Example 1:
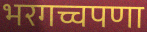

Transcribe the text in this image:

भरगच्चपणा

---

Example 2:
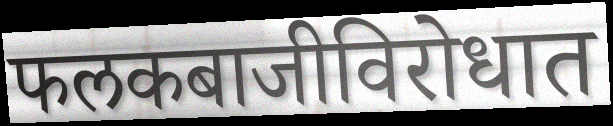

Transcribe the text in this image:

फलकबाजीविरोधात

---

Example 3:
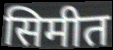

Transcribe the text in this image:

सिमीत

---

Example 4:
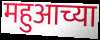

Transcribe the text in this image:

महुआच्या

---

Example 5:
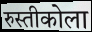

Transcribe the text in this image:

रुस्तीकोला